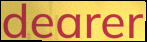
dearer